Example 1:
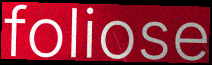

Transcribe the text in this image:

foliose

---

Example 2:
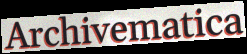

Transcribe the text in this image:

Archivematica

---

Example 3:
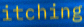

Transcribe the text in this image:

itching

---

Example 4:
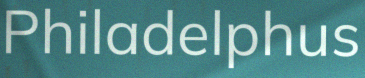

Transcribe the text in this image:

Philadelphus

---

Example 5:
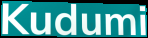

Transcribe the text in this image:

Kudumi